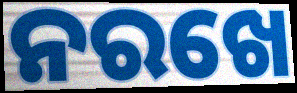
ନରଖେ